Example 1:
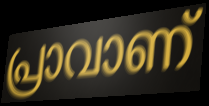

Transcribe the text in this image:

പ്രാവാണ്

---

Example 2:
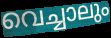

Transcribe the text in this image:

വെച്ചാലും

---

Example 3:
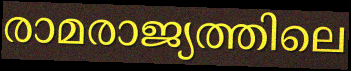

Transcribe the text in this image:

രാമരാജ്യത്തിലെ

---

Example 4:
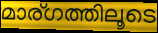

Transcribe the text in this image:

മാര്ഗത്തിലൂടെ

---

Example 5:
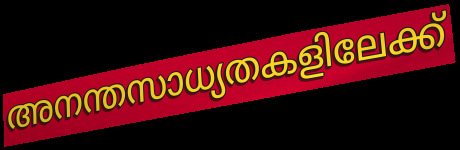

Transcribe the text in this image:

അനന്തസാധ്യതകളിലേക്ക്